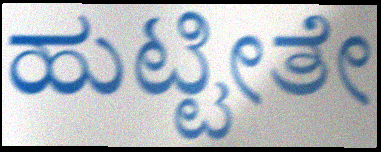
ಹುಟ್ಟೀತೇ